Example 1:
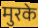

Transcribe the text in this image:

मुरके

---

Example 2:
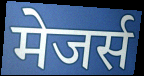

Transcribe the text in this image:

मेजर्स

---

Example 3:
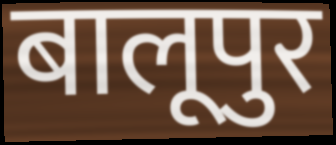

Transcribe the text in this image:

बालूपुर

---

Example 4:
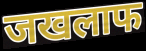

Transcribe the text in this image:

जखलाफ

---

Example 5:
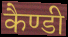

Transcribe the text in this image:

कैण्डी